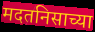
मदतनिसाच्या